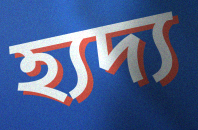
হ্যদ্য